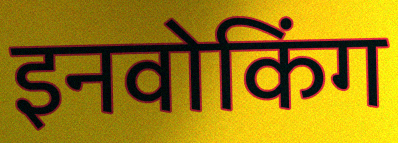
इनवोकिंग